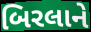
બિરલાને